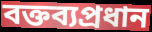
বক্তব্যপ্রধান